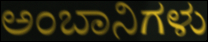
ಅಂಬಾನಿಗಳು